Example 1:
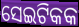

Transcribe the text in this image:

ସେଇଟିକକ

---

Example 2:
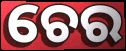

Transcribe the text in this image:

ଚେର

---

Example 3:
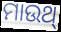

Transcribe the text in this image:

ମାଉଥ୍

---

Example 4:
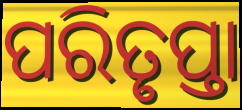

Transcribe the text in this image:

ପରିତୃପ୍ତା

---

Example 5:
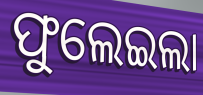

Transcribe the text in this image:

ଫୁଲେଇଲା